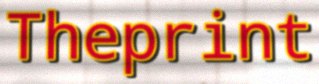
Theprint